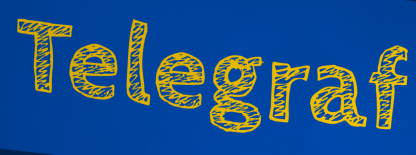
Telegraf